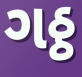
ગઠ્ઠ